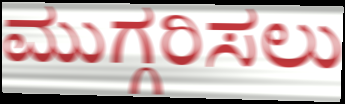
ಮುಗ್ಗರಿಸಲು